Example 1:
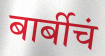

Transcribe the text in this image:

बार्बीचं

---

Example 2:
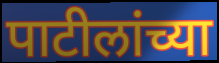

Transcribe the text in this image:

पाटीलांच्या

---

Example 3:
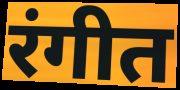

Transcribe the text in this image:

रंगीत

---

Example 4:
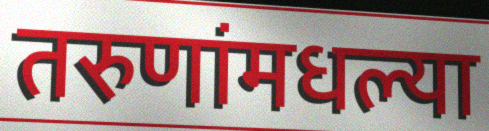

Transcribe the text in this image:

तरुणांमधल्या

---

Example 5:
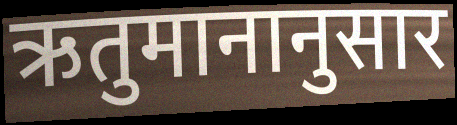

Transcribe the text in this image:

ऋतुमानानुसार